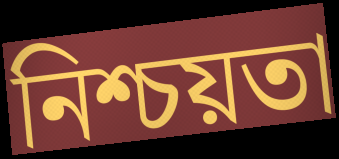
নিশ্চয়তা